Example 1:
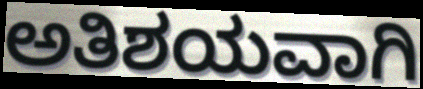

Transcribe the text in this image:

ಅತಿಶಯವಾಗಿ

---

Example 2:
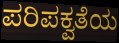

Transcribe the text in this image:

ಪರಿಪಕ್ವತೆಯ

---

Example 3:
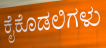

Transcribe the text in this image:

ಕೈಕೊಡಲಿಗಳು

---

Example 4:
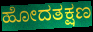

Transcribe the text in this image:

ಹೋದತಕ್ಷಣ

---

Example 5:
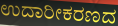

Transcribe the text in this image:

ಉದಾರೀಕರಣದ